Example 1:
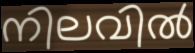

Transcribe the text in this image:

നിലവിൽ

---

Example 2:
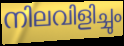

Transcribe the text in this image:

നിലവിളിച്ചും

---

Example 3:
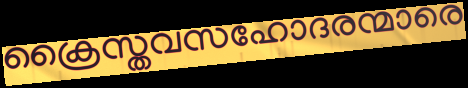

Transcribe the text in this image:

ക്രൈസ്തവസഹോദരന്മാരെ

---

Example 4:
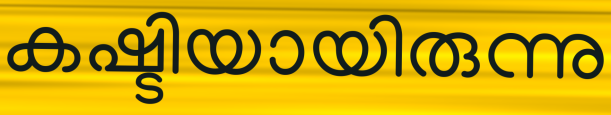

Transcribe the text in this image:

കഷ്ടിയായിരുന്നു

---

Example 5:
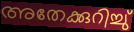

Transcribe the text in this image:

അതേക്കുറിച്ചു്